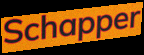
Schapper